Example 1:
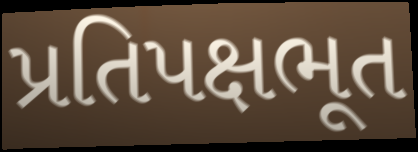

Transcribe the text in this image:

પ્રતિપક્ષભૂત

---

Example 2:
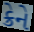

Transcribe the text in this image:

ક્રેને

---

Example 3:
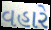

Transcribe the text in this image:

વહારે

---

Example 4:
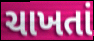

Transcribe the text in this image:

ચાખતાં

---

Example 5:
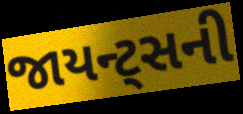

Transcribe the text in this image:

જાયન્ટ્સની